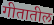
गीतातील